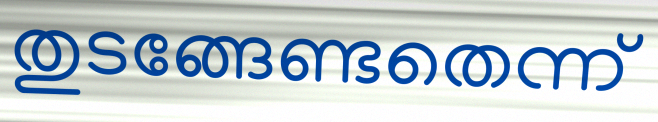
തുടങ്ങേണ്ടതെന്ന്